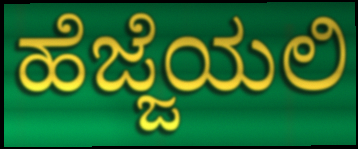
ಹೆಜ್ಜೆಯಲಿ